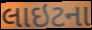
લાઇટના